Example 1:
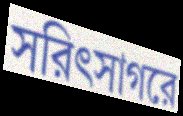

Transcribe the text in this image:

সরিৎসাগরে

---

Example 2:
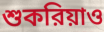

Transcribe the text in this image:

শুকরিয়াও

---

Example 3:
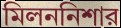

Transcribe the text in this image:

মিলননিশার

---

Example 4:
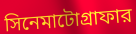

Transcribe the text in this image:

সিনেমাটোগ্রাফার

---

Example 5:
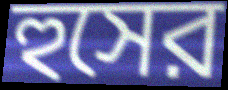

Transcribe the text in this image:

হুসের